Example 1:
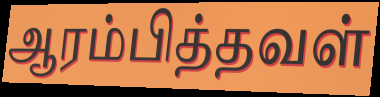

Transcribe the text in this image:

ஆரம்பித்தவள்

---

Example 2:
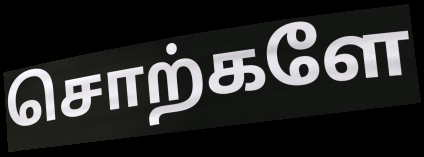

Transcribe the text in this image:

சொற்களே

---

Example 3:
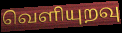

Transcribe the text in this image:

வெளியுறவு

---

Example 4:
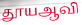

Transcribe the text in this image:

தூயஆவி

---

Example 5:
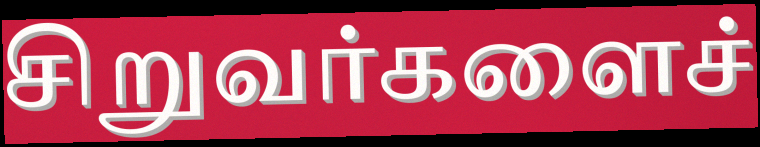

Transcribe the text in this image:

சிறுவர்களைச்